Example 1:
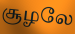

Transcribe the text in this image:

சூழலே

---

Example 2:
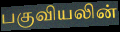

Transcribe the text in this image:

பகுவியலின்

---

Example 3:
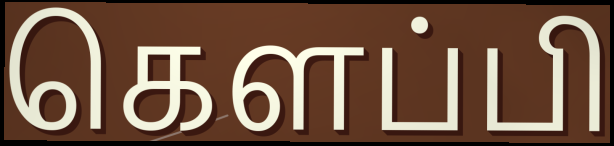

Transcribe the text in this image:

கெளப்பி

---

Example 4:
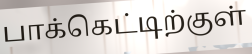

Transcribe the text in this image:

பாக்கெட்டிற்குள்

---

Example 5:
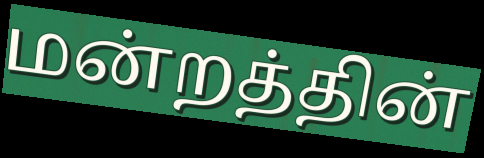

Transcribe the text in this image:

மன்றத்தின்